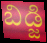
బిడ్జి